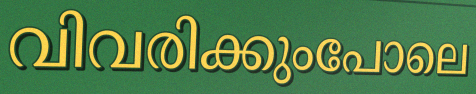
വിവരിക്കുംപോലെ